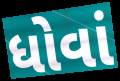
ધોવાં